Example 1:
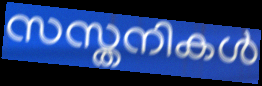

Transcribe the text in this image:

സസ്തനികൾ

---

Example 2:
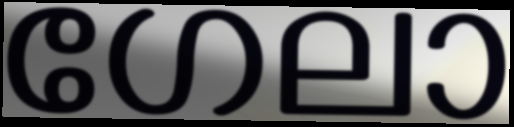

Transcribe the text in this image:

ഗേലാ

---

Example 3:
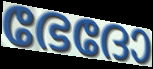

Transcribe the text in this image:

ഭേദോ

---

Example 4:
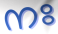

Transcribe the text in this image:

നഃ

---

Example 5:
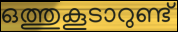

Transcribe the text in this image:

ഒത്തുകൂടാറുണ്ട്